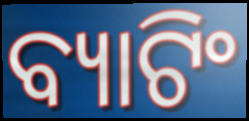
ବ୍ୟାଟିଂ